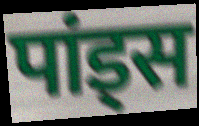
पांड्स